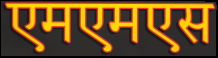
एमएमएस